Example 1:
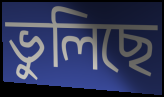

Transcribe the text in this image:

ভুলিছে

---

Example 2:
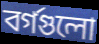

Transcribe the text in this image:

বর্গগুলো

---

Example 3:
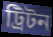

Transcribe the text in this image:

ট্রিটন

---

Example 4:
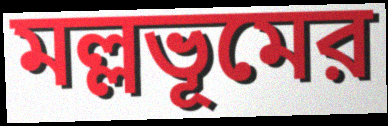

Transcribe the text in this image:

মল্লভূমের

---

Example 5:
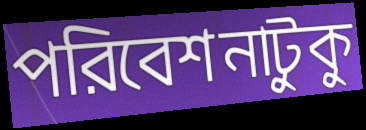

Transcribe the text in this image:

পরিবেশনাটুকু